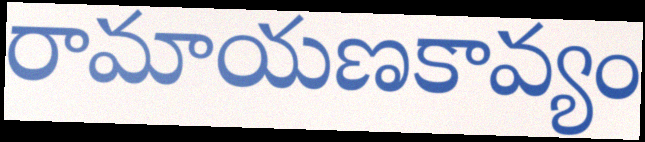
రామాయణకావ్యం